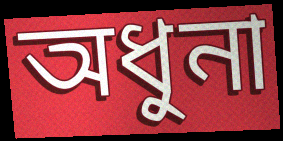
অধুনা